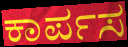
ಕಾರ್ಪಸ